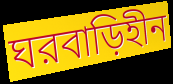
ঘরবাড়িহীন